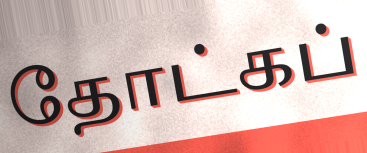
தோட்கப்